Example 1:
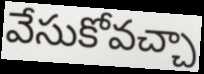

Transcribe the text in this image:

వేసుకోవచ్చా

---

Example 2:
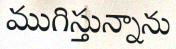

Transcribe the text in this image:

ముగిస్తున్నాను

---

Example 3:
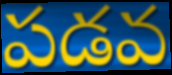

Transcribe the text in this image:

పడవ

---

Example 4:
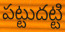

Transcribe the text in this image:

పట్టుదట్టి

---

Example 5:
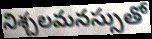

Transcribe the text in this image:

నిశ్చలమనస్సుతో